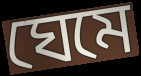
ঘেমে